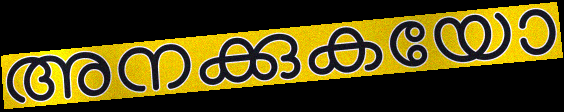
അനക്കുകയോ